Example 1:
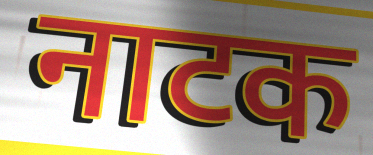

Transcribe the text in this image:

नाटक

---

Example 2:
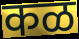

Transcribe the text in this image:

कळ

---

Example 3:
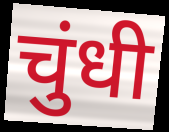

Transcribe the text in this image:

चुंधी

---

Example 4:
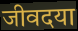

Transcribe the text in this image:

जीवदया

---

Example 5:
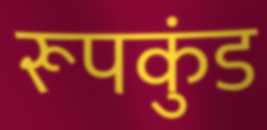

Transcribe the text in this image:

रूपकुंड